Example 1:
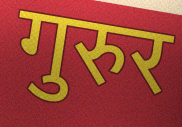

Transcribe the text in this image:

गुरुर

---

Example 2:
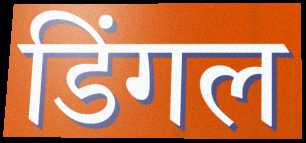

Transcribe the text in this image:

डिंगल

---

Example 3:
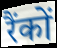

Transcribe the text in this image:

रैंकों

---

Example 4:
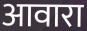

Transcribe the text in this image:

आवारा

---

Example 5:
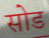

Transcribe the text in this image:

सोड